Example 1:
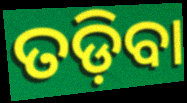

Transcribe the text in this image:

ତଡ଼ିବା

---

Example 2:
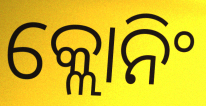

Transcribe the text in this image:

କ୍ଲୋନିଂ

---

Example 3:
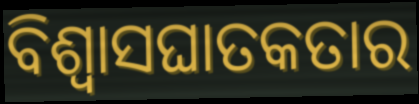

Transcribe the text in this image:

ବିଶ୍ୱାସଘାତକତାର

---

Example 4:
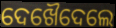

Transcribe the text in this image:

ଦେଖୈଦେଲେ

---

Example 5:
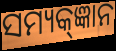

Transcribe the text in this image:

ସମ୍ୟକ୍‌ଜ୍ଞାନ